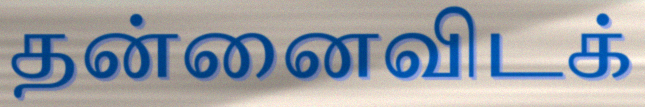
தன்னைவிடக்